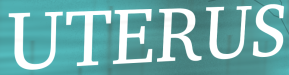
UTERUS